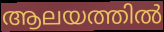
ആലയത്തിൽ